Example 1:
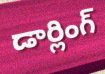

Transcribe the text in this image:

డార్లింగ్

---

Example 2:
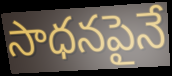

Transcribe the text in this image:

సాధనపైనే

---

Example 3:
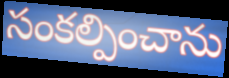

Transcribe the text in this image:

సంకల్పించాను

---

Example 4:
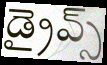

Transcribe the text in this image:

డ్రైవ్స్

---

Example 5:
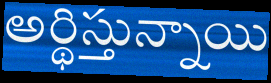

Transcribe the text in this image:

అర్థిస్తున్నాయి